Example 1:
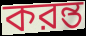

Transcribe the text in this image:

করন্ত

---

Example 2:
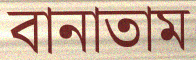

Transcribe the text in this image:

বানাতাম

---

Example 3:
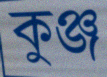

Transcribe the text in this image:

কুঞ্জ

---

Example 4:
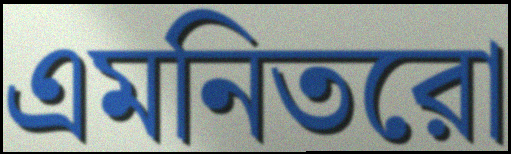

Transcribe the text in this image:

এমনিতরো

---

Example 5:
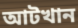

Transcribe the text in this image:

আটখান